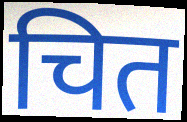
चित